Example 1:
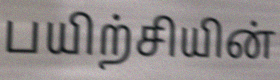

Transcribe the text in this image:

பயிற்சியின்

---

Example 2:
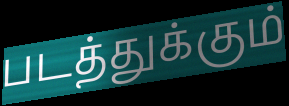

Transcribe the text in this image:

படத்துக்கும்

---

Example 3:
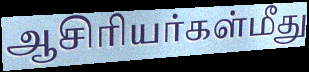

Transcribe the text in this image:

ஆசிரியர்கள்மீது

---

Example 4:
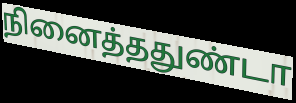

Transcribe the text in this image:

நினைத்ததுண்டா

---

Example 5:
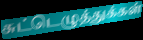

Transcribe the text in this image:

சுட்டெழுத்துக்கள்